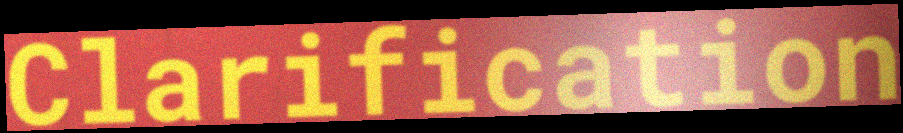
Clarification